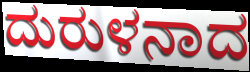
ದುರುಳನಾದ